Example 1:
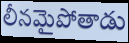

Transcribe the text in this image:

లీనమైపోతాడు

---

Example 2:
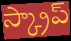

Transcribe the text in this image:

స్క్రాప్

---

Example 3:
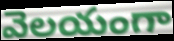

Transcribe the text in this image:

వెలయంగా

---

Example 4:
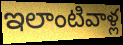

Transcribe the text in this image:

ఇలాంటివాళ్ల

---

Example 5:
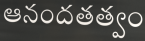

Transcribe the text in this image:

ఆనందతత్వం